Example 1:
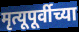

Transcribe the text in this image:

मृत्यूपूर्वीच्या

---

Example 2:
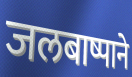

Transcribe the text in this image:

जलबाष्पाने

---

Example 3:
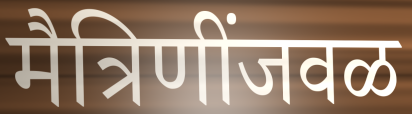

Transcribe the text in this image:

मैत्रिणींजवळ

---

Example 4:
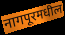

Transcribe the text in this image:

नागपूरमधील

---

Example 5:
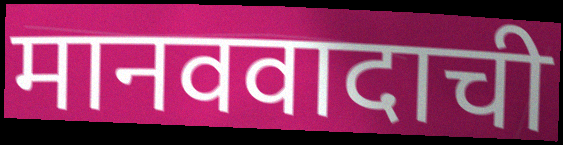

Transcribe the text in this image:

मानववादाची